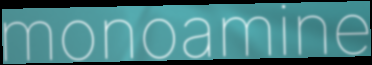
monoamine